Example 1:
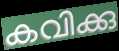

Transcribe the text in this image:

കവിക്കു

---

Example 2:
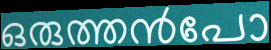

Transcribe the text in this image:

ഒരുത്തൻപോ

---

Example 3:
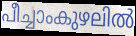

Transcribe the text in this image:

പീച്ചാംകുഴലിൽ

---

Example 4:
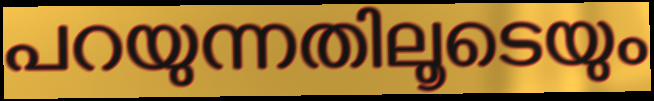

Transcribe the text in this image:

പറയുന്നതിലൂടെയും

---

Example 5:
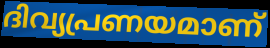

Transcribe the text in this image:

ദിവ്യപ്രണയമാണ്